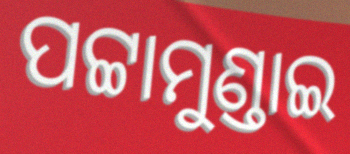
ପଟ୍ଟାମୁଣ୍ଡାଇ